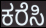
ಕರೆಸಿ